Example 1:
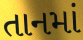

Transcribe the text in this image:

તાનમાં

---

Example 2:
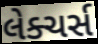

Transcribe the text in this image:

લેક્ચર્સ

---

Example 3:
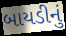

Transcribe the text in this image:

બાયડીનું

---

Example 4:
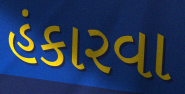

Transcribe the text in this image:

હંકારવા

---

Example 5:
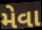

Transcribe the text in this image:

મેવા